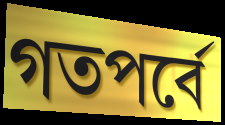
গতপর্বে